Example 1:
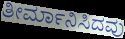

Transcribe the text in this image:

ತೀರ್ಮಾನಿಸಿದವು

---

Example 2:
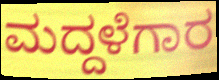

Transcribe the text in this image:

ಮದ್ದಳೆಗಾರ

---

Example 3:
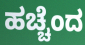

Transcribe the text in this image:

ಹಚ್ಚೆಂದ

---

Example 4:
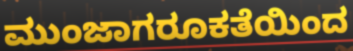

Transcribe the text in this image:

ಮುಂಜಾಗರೂಕತೆಯಿಂದ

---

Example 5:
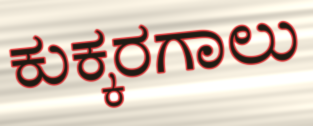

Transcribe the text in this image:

ಕುಕ್ಕರಗಾಲು